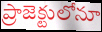
ప్రాజెక్టులోనూ